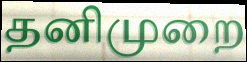
தனிமுறை